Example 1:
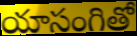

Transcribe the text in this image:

యాసంగితో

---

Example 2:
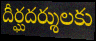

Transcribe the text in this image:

దీర్ఘదర్శులకు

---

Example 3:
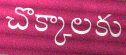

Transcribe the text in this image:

చొక్కాలకు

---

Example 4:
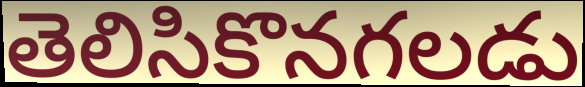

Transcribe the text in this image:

తెలిసికొనగలడు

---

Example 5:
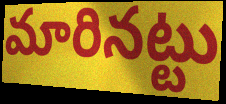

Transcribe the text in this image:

మారినట్టు